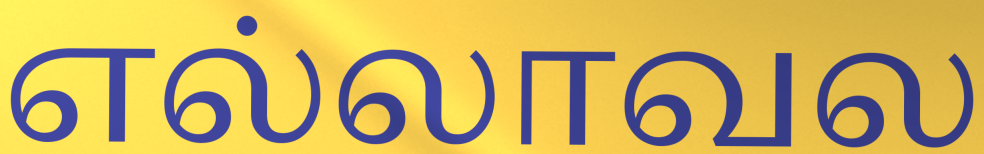
எல்லாவல